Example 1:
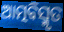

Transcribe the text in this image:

ଆତ୍ମବିସ୍ମୃତ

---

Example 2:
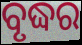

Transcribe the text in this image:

ବୃଦ୍ଧର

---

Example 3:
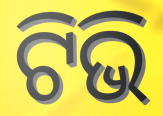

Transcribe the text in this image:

ଟିଭି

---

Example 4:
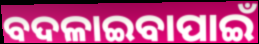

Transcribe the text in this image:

ବଦଳାଇବାପାଇଁ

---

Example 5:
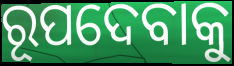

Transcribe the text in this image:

ରୂପଦେବାକୁ